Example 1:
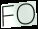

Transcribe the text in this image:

FO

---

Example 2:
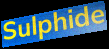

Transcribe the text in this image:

Sulphide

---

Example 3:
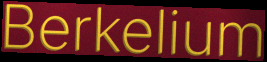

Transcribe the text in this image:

Berkelium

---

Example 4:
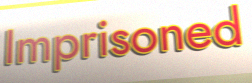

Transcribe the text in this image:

Imprisoned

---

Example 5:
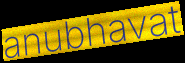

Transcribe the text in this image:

anubhavat